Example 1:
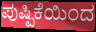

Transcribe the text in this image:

ಪುಷ್ಪಿಕೆಯಿಂದ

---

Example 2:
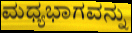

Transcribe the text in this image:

ಮಧ್ಯಭಾಗವನ್ನು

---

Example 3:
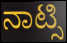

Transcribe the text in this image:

ನಾಟ್ಸಿ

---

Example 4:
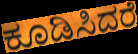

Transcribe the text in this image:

ಕೂಡಿಸಿದರೆ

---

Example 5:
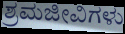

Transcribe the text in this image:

ಶ್ರಮಜೀವಿಗಳು